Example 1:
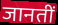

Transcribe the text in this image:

जानतीं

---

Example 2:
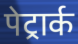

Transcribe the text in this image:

पेट्रार्क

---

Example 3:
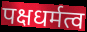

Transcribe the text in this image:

पक्षधर्मत्व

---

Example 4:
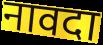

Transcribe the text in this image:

नावदा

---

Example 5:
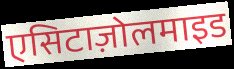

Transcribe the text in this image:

एसिटाज़ोलमाइड